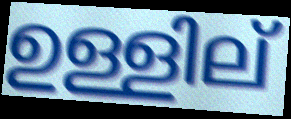
ഉള്ളില്